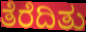
ತೆರೆದಿತು